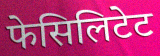
फेसिलिटेट